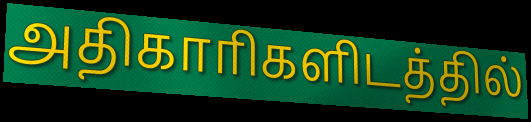
அதிகாரிகளிடத்தில்